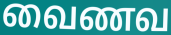
வைணவ